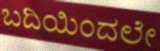
ಬದಿಯಿಂದಲೇ